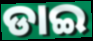
ଡାଇ